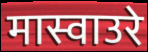
मास्वाउरे